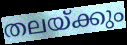
തലയ്ക്കും